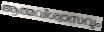
ആത്മവിശ്വാസവും